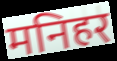
मनिहर